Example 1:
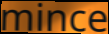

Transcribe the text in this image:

mince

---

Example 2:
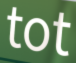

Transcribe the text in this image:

tot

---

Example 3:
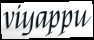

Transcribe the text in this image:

viyappu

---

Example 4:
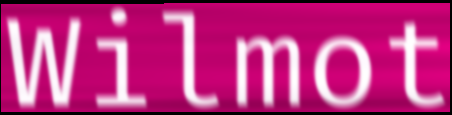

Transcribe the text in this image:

Wilmot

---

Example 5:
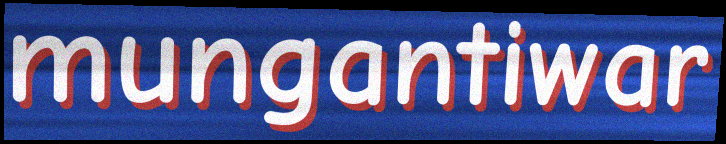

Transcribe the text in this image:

mungantiwar